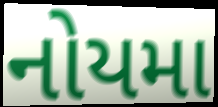
નોયમા